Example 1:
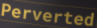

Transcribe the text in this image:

Perverted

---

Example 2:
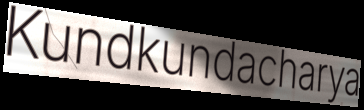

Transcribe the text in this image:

Kundkundacharya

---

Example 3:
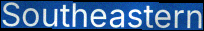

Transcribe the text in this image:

Southeastern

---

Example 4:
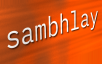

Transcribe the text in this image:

sambhlay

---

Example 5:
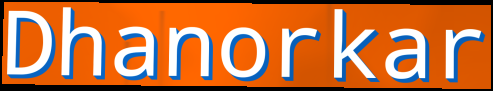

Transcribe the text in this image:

Dhanorkar